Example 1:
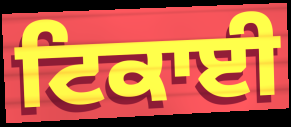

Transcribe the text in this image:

ਟਿਕਾਈ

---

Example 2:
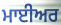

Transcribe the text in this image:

ਮਾਈਅਰ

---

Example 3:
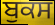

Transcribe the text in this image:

ਬੁਕਸ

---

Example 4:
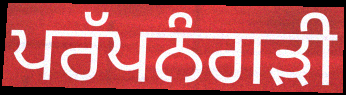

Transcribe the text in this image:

ਪਰੱਪਨੰਗੜੀ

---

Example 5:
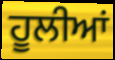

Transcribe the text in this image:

ਹੂਲੀਆਂ